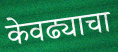
केवढ्याचा